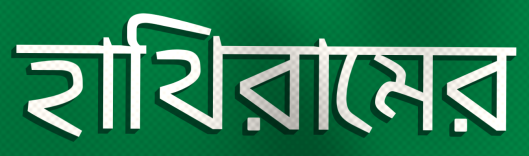
হাথিরামের